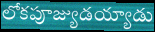
లోకపూజ్యుడయ్యాడు